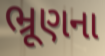
ભ્રૂણના